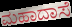
ಮಹಾದಾಸೆ